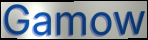
Gamow